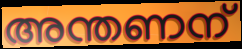
അന്തണന്